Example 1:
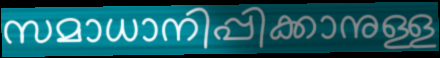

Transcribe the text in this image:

സമാധാനിപ്പിക്കാനുള്ള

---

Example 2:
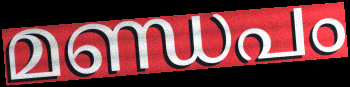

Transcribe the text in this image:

മണ്ഡപം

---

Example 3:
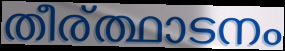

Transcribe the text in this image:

തീര്ത്ഥാടനം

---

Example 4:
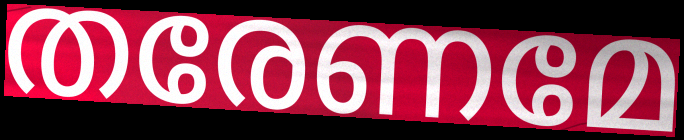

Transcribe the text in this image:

തരേണമേ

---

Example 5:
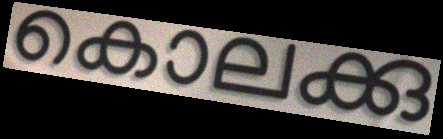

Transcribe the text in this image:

കൊലക്കു